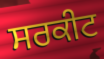
ਸਰਕੀਟ